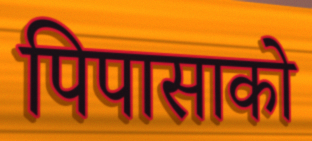
पिपासाको